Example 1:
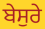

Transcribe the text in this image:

ਬੇਸੁਰੇ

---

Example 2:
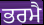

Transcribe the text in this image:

ਭਰਮੈ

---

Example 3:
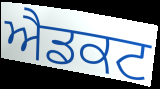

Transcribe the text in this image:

ਐਡਕਟ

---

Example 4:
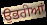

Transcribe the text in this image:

ਉਭਰੀਆਂ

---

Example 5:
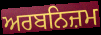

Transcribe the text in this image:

ਅਰਬਨਿਜ਼ਮ